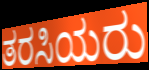
ತರಸಿಯರು